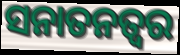
ସନାତନତ୍ୱର